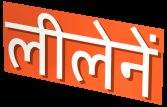
लीलेनें